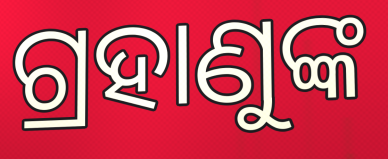
ଗ୍ରହାଣୁଙ୍କ